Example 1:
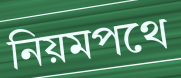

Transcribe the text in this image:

নিয়মপথে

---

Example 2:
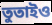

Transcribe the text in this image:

তুতাইও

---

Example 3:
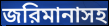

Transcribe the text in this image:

জরিমানাসহ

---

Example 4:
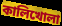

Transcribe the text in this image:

কালিখোলা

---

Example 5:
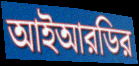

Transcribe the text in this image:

আইআরডির